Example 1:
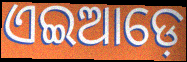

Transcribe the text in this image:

ଏଇଆଡ଼େ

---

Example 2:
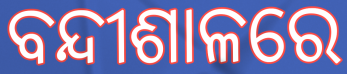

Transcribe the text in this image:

ବନ୍ଦୀଶାଳରେ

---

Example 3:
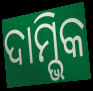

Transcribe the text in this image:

ଦାମ୍ଭିକ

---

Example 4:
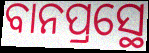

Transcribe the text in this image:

ବାନପ୍ରସ୍ଥେ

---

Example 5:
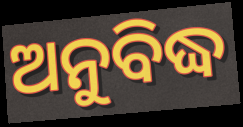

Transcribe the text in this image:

ଅନୁବିଦ୍ଧ